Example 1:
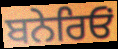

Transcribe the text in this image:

ਬਨੇਰਿਓਂ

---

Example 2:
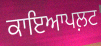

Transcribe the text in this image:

ਕਾਇਆਪਲ਼ਟ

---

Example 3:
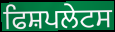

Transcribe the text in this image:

ਫਿਸ਼ਪਲੇਟਸ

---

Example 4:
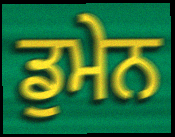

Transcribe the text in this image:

ਡੁਮੇਨ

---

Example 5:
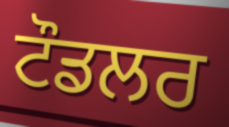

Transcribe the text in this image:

ਟੌਡਲਰ